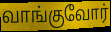
வாங்குவோர்